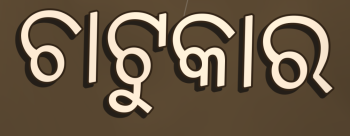
ଚାଟୁକାର